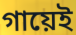
গায়েই